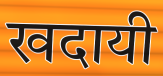
खदायी